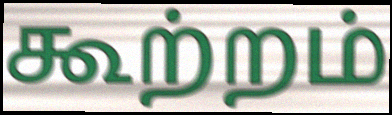
கூற்றம்